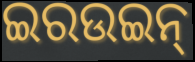
ଇରଉଇନ୍